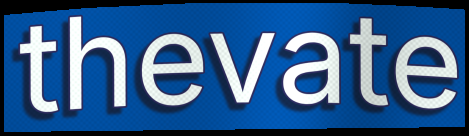
thevate